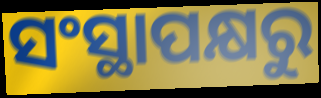
ସଂସ୍ଥାପକ୍ଷରୁ